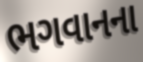
ભગવાનના